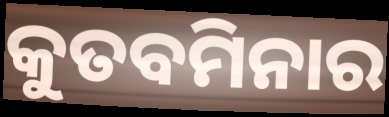
କୁତବମିନାର